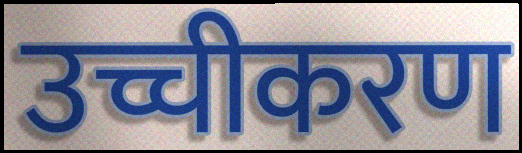
उच्चीकरण